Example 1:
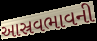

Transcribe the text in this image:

આસ્રવભાવની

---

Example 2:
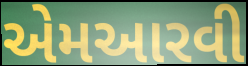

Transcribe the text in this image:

એમઆરવી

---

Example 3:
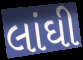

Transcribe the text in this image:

લાંઘી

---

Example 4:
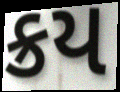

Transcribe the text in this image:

ક્રય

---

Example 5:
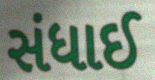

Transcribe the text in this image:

સંધાઈ